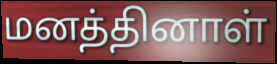
மனத்தினாள்